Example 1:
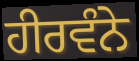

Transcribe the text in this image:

ਹੀਰਵੰਨੇ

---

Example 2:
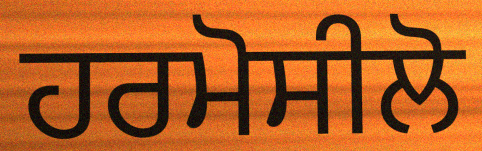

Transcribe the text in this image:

ਹਰਮੋਸੀਲੋ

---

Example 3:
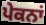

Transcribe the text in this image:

ਪੇਕਨਾਂ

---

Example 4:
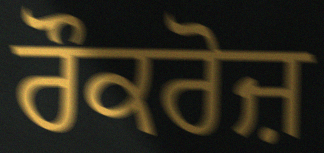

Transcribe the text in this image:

ਰੌਕਰੋਜ਼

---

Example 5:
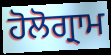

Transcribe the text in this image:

ਹੋਲੋਗ੍ਰਾਮ